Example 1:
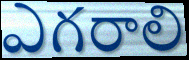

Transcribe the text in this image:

ఎగరాలి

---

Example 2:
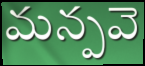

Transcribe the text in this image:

మన్పవె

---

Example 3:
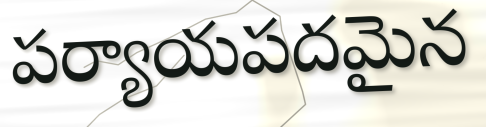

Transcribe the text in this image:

పర్యాయపదమైన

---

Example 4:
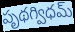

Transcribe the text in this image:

పృథగ్విధమ్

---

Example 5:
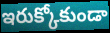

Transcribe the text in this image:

ఇరుక్కోకుండా